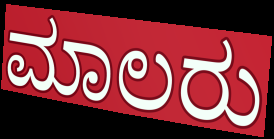
ಮಾಲರು